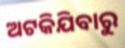
ଅଟକିଯିବାରୁ